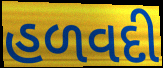
હળવદી